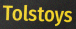
Tolstoys